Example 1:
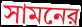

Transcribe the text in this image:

সামনের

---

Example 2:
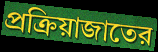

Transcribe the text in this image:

প্রক্রিয়াজাতের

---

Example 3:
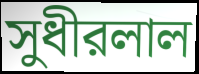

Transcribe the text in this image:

সুধীরলাল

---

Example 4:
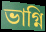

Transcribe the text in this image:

ভাগ্নি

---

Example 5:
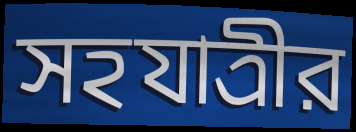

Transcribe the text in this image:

সহযাত্রীর